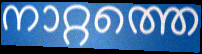
നാറ്റത്തെ